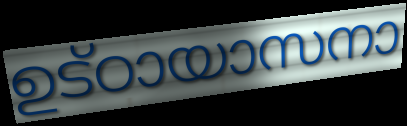
ഉട്ഠായാസനാ